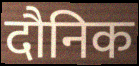
दौनिक